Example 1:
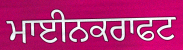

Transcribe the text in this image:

ਮਾਈਨਕਰਾਫਟ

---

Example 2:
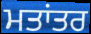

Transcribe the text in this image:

ਮਤਾਂਤਰ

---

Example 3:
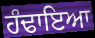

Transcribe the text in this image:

ਹੰਢਾਇਆ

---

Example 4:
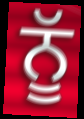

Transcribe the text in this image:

ਨੂੱ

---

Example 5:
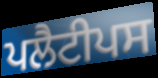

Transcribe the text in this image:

ਪਲੈਟੀਪਸ